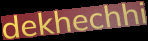
dekhechhi